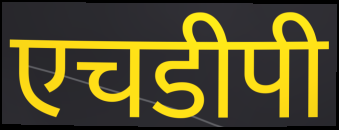
एचडीपी